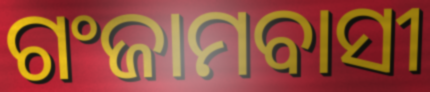
ଗଂଜାମବାସୀ